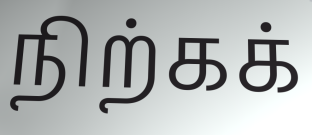
நிற்கக்